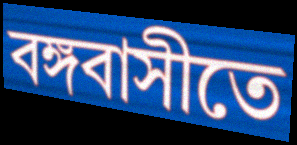
বঙ্গবাসীতে